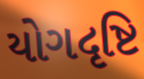
યોગદૃષ્ટિ